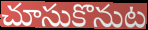
చూసుకొనుట